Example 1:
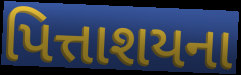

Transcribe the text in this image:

પિત્તાશયના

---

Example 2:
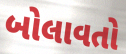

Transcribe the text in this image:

બોલાવતો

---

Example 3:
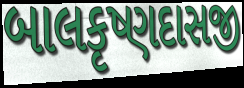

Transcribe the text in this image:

બાલકૃષ્ણદાસજી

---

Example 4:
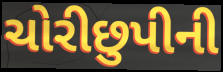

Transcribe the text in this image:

ચોરીછુપીની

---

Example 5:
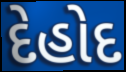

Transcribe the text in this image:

દેહોદ